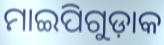
ମାଇପିଗୁଡ଼ାକ